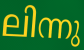
ലിന്നു